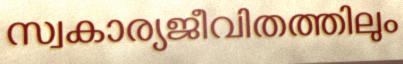
സ്വകാര്യജീവിതത്തിലും